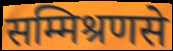
सम्मिश्रणसे